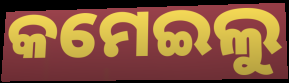
କମେଇଲୁ